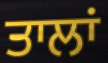
ਤਾਲਾਂ